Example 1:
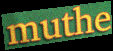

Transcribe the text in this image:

muthe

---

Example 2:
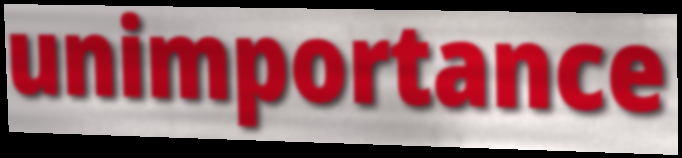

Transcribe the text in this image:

unimportance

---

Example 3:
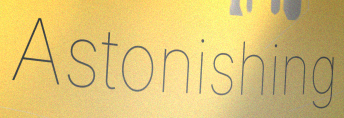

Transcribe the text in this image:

Astonishing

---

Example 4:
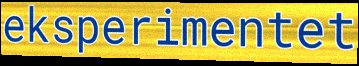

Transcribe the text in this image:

eksperimentet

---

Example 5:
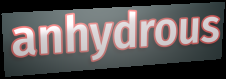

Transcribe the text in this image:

anhydrous